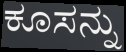
ಕೂಸನ್ನು